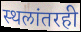
स्थलांतरही